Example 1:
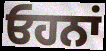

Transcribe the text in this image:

ਓਹਨਾਂ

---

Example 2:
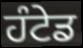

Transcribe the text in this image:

ਹੰਟੇਡ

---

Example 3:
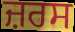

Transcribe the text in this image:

ਜ਼ਰਸ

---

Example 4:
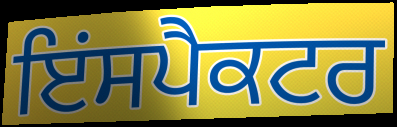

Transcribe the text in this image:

ਇਂਸਪੈਕਟਰ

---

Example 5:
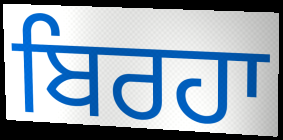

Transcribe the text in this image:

ਬਿਰਹਾ